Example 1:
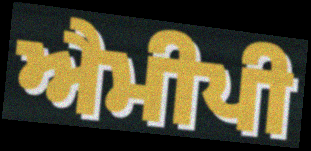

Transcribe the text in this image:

ਐਮੀਪੀ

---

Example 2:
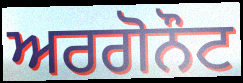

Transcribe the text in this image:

ਅਰਗੋਨੌਟ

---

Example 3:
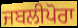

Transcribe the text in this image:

ਜਬਲੀਪੋਰਾ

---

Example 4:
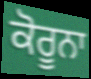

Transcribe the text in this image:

ਕੋਰੂਨਾ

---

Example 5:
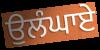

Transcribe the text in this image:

ਉਲੰਘਾਏ